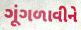
ગૂંગળાવીને